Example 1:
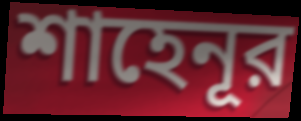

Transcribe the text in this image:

শাহেনূর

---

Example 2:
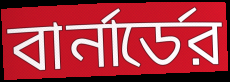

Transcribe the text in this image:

বার্নার্ডের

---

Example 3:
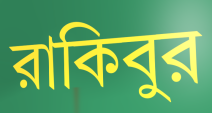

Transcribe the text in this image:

রাকিবুর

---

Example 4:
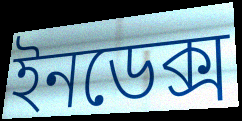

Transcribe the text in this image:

ইনডেক্স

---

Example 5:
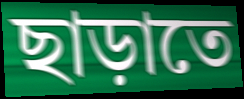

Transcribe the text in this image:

ছাড়াতে